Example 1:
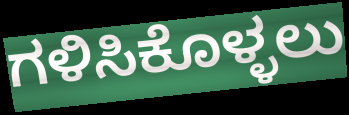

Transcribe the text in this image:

ಗಳಿಸಿಕೊಳ್ಳಲು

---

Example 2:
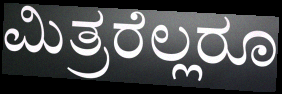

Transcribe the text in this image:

ಮಿತ್ರರೆಲ್ಲರೂ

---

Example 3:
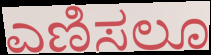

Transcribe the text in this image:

ಎಣಿಸಲೂ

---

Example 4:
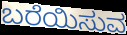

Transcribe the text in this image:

ಬರೆಯಿಸುವ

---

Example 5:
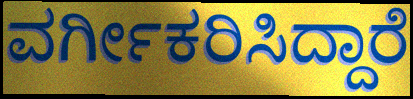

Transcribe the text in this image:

ವರ್ಗೀಕರಿಸಿದ್ದಾರೆ